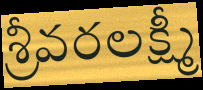
శ్రీవరలక్ష్మీ